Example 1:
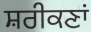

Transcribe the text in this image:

ਸ਼ਰੀਕਣਾਂ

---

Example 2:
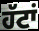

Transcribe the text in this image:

ਹੱਟਾਂ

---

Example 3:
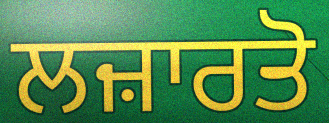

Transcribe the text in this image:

ਲਜ਼ਾਰਤੋ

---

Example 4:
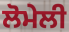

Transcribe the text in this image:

ਲੋਮੇਲੀ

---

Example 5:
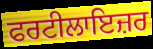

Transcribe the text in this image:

ਫਰਟੀਲਾਇਜ਼ਰ